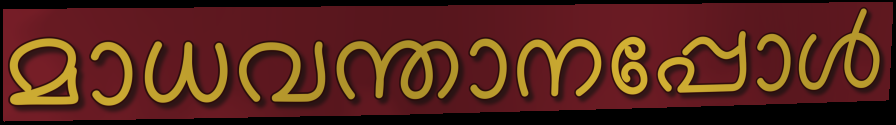
മാധവന്താനപ്പോൾ